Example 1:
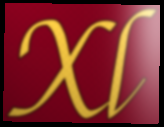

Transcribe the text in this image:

Xl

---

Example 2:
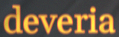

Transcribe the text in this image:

deveria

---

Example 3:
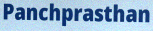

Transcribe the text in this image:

Panchprasthan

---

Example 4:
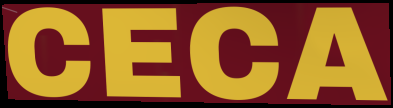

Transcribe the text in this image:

CECA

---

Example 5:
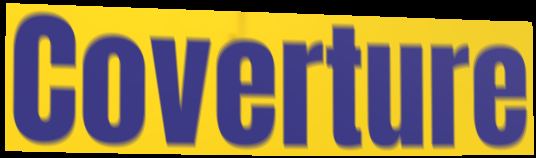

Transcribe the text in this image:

Coverture